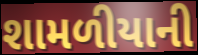
શામળીયાની